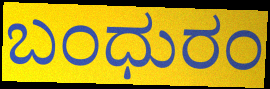
ಬಂಧುರಂ